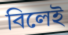
বিলেই